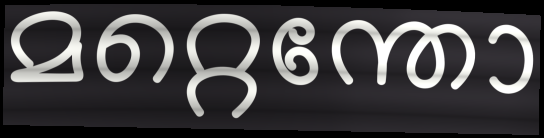
മറ്റെന്തോ